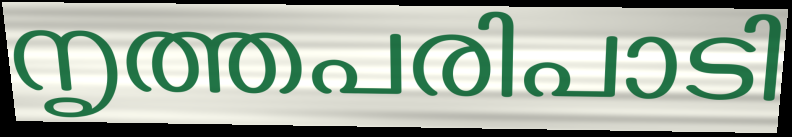
നൃത്തപരിപാടി